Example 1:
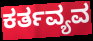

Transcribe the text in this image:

ಕರ್ತವ್ಯವ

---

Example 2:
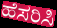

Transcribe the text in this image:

ಹೆಸರಿಸಿ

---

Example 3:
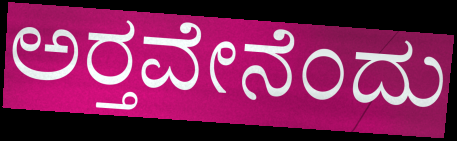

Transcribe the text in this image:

ಅರ‍್ತವೇನೆಂದು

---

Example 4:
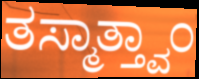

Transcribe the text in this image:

ತಸ್ಮಾತ್ತ್ವಾಂ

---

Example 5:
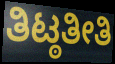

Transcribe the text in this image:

ತಿಟ್ಠತೀತಿ